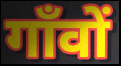
गाँवों